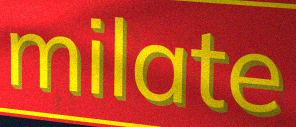
milate